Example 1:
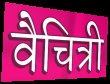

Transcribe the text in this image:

वैचित्री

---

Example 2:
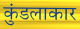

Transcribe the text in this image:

कुंडलाकार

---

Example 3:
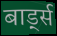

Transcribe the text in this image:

बार्ड्स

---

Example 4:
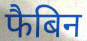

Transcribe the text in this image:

फैबिन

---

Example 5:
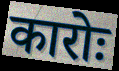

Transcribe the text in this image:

कारोः